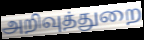
அறிவுத்துறை